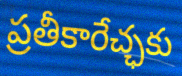
ప్రతీకారేచ్ఛకు